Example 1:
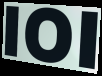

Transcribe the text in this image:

IOI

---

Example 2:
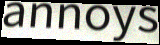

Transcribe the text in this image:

annoys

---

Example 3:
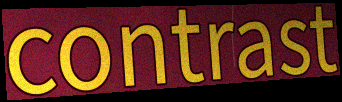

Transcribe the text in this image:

contrast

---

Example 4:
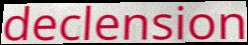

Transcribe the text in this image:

declension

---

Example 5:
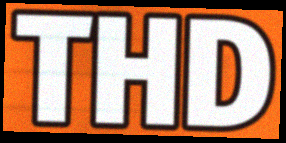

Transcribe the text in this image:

THD